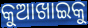
କୁଆଖାଇକୁ